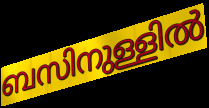
ബസിനുള്ളിൽ